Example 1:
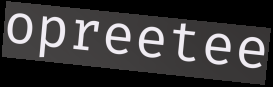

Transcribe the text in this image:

opreetee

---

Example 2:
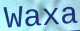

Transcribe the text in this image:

Waxa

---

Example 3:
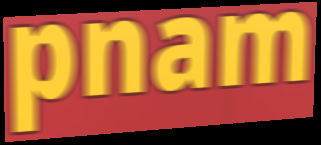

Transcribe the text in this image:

pnam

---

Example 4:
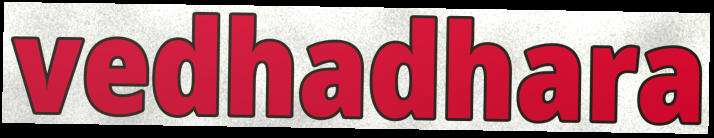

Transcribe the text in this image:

vedhadhara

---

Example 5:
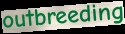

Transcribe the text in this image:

outbreeding